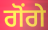
ਗੋਂਗੇ